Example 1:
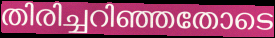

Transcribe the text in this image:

തിരിച്ചറിഞ്ഞതോടെ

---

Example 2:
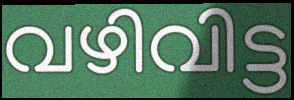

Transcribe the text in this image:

വഴിവിട്ട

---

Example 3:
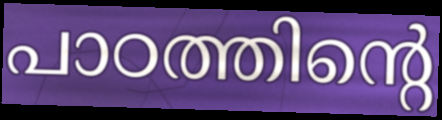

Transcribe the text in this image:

പാഠത്തിന്റെ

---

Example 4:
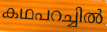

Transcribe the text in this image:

കഥപറച്ചിൽ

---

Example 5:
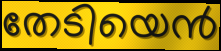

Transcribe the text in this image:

തേടിയെൻ